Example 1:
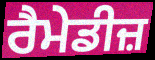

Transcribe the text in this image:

ਰੈਮੇਡੀਜ਼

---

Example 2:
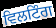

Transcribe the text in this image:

ਵਿਲਟਿੰਗ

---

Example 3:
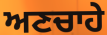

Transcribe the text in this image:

ਅਣਚਾਹੇ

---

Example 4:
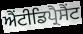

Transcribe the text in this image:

ਐਂਟੀਡਿਪ੍ਰੈਸੈਂਟ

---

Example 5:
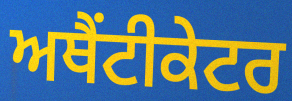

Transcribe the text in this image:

ਅਥੈਂਟੀਕੇਟਰ